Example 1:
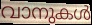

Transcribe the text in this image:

വാനുകൾ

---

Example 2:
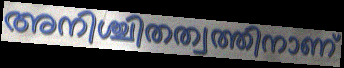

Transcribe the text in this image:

അനിശ്ചിതത്വത്തിനാണ്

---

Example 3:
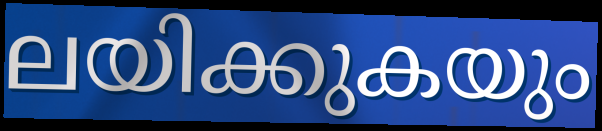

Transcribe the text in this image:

ലയിക്കുകയും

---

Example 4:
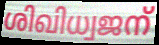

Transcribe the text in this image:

ശിഖിധ്വജന്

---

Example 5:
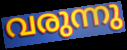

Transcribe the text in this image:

വരുന്നു